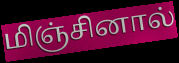
மிஞ்சினால்